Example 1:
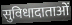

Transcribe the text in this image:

सुविधादाताओं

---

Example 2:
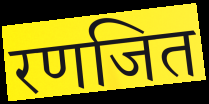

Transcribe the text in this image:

रणजित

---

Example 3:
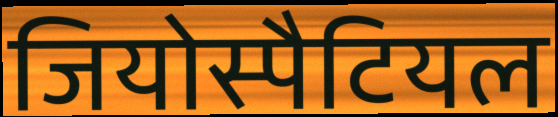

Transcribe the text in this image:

जियोस्पैटियल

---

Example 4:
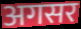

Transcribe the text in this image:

अगसर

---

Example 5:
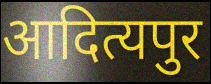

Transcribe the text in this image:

आदित्यपुर